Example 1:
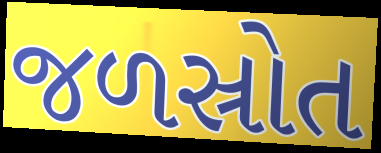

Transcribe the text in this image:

જળસ્રોત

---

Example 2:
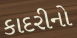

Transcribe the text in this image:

કાદરીનો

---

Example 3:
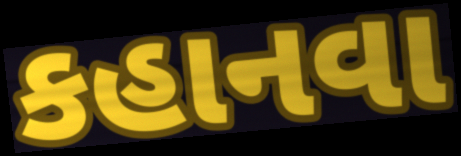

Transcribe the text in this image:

કહાનવા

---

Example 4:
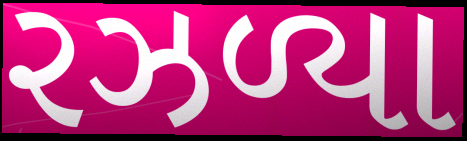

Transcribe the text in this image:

રઝળ્યા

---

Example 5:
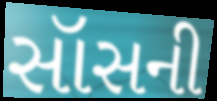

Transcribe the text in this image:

સૉસની